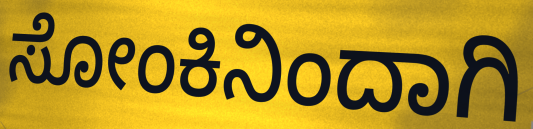
ಸೋಂಕಿನಿಂದಾಗಿ